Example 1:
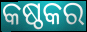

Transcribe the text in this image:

କଷ୍ଠକର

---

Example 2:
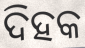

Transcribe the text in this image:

ଦିହକ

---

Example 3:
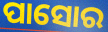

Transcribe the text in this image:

ପାସୋର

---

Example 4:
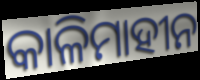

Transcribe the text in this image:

କାଳିମାହୀନ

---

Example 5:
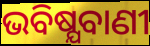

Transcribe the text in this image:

ଭବିଷ୍ଯବାଣୀ